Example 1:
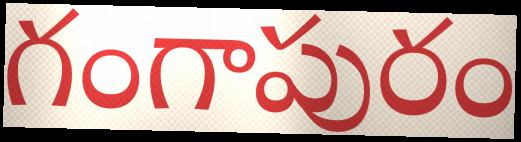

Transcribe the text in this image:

గంగాపురం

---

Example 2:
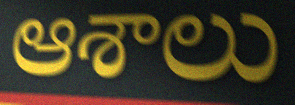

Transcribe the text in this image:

ఆశాలు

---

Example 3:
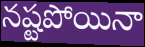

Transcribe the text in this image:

నష్టపోయినా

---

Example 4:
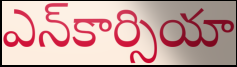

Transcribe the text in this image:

ఎన్‌కార్సియా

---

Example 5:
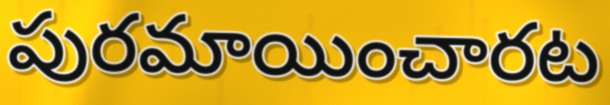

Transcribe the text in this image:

పురమాయించారట